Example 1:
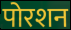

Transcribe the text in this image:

पोरशन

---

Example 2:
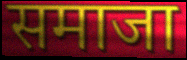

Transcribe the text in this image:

समाजा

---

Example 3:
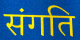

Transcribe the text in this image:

संगति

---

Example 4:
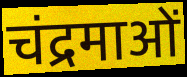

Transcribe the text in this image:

चंद्रमाओं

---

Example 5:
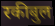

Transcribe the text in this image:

रकीबुल